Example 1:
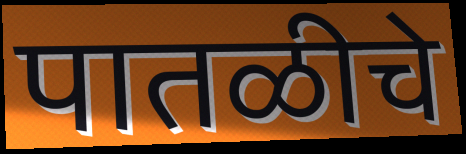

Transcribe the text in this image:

पातळीचे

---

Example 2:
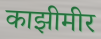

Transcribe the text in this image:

काझीमीर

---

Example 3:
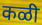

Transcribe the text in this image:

कळी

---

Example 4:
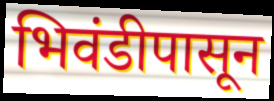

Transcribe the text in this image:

भिवंडीपासून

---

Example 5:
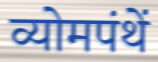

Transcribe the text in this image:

व्योमपंथें